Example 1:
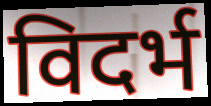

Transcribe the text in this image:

विदर्भ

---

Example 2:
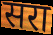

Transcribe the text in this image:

सरा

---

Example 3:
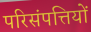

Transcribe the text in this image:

परिसंपत्तियों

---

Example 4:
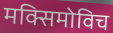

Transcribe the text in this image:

मक्सिमोविच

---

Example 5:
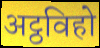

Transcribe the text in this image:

अट्ठविहो